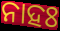
ନାହଃ